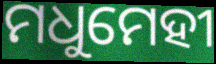
ମଧୁମେହୀ